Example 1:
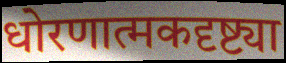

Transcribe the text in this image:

धोरणात्मकदृष्ट्या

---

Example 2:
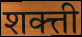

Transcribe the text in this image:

शक्त्ती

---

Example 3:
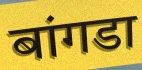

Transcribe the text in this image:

बांगडा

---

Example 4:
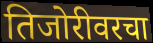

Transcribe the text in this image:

तिजोरीवरचा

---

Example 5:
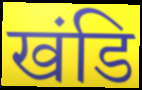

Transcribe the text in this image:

खंडि